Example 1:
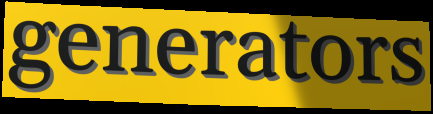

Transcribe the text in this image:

generators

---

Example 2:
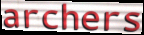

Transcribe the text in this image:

archers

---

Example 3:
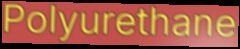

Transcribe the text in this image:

Polyurethane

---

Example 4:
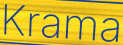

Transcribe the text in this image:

Krama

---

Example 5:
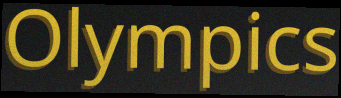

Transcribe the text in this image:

Olympics